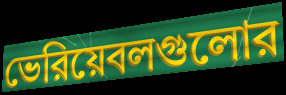
ভেরিয়েবলগুলোর